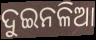
ଦୁଇନଳିଆ